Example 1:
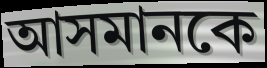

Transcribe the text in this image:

আসমানকে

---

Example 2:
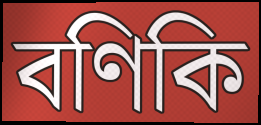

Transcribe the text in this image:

বণিকি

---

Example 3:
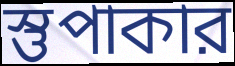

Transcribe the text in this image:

স্তুপাকার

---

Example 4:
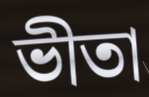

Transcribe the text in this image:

ভীতা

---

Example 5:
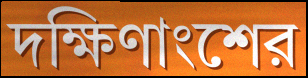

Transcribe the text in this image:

দক্ষিণাংশের